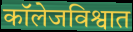
कॉलेजविश्वात